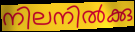
നിലനിൽക്കു